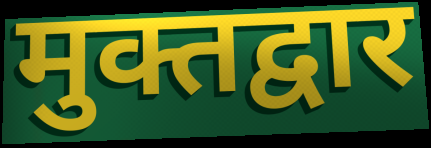
मुक्तद्वार